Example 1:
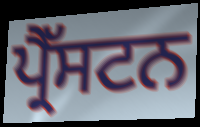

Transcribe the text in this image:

ਪ੍ਰੈੱਸਟਨ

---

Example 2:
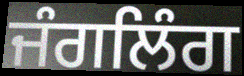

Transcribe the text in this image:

ਜੰਗਲਿੰਗ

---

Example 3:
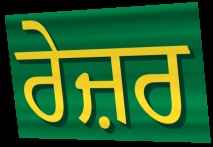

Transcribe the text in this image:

ਰੇਜ਼ਰ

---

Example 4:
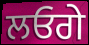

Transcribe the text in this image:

ਲਓਗੇ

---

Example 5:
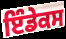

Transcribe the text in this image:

ਇੰਡੇਕਸ